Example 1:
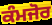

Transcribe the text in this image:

ਕੰਮਜੋਰ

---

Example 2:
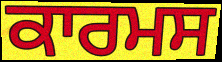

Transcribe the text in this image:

ਕਾਰਮਸ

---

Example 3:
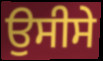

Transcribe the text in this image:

ਉਸੀਸੇ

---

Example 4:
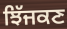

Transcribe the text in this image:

ਝਿੱਜਕਣ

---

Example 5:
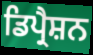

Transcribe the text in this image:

ਡਿਪ੍ਰੈਸ਼ਨ